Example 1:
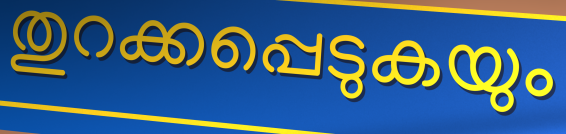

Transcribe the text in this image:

തുറക്കപ്പെടുകയും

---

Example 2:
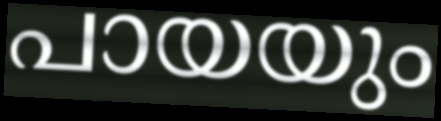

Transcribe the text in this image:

പായയും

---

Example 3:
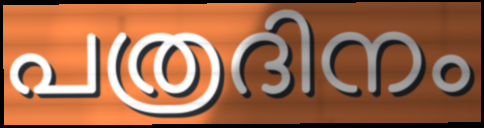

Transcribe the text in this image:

പത്രദിനം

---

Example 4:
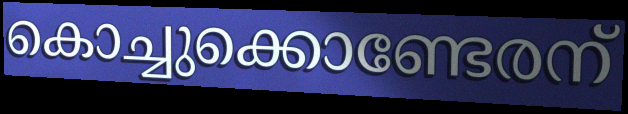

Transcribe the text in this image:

കൊച്ചുക്കൊണ്ടേരന്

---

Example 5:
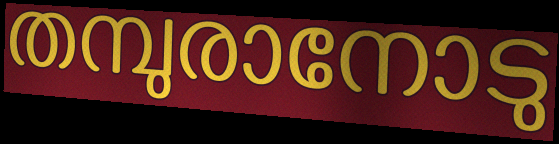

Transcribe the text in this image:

തമ്പുരാനോടു